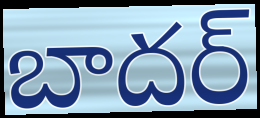
బాదర్